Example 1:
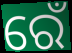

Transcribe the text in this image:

ରେଁ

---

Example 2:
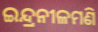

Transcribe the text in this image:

ଇନ୍ଦ୍ରନୀଳମଣି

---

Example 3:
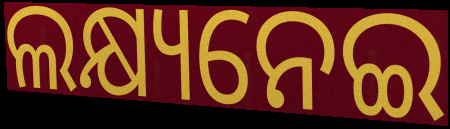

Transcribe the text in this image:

ଲକ୍ଷ୍ୟନେଇ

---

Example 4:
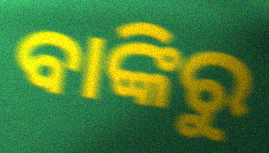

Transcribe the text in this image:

ବାଙ୍କିରୁ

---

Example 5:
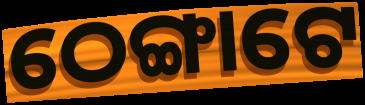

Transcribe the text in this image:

ଠେଙ୍ଗାଟେ